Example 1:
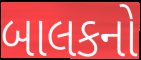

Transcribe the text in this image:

બાલકનો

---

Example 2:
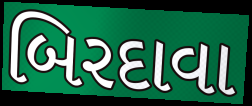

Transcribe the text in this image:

બિરદાવા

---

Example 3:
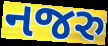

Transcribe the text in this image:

નજરુ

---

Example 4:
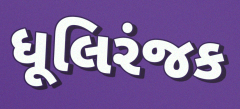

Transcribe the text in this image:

ધૂલિરંજક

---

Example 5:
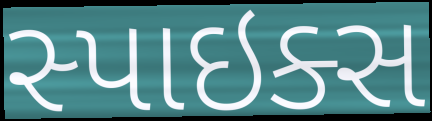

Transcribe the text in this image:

સ્પાઇક્સ